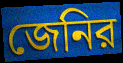
জেনির